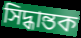
সিদ্ধান্তক